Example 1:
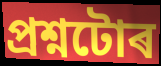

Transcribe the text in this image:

প্ৰশ্নটোৰ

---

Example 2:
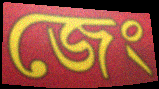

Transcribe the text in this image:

জেং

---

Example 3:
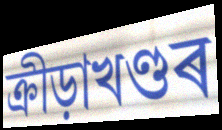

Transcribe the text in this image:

ক্ৰীড়াখণ্ডৰ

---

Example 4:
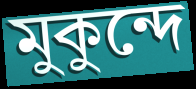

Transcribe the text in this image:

মুকুন্দে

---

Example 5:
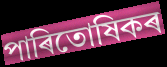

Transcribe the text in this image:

পাৰিতোষিকৰ